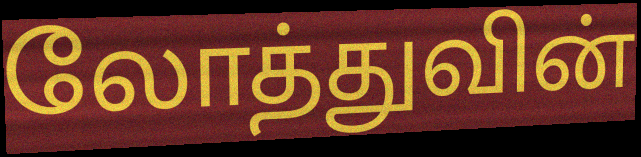
லோத்துவின்